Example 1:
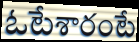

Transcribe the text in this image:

ఓటేశారంటే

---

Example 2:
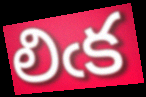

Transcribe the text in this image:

లిఁక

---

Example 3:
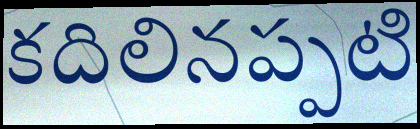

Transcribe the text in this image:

కదిలినప్పటి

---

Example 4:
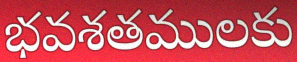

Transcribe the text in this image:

భవశతములకు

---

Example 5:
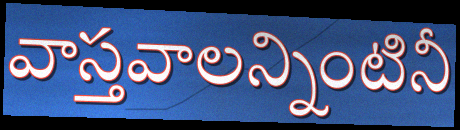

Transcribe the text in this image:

వాస్తవాలన్నింటినీ